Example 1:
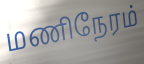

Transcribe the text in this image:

மணிநேரம்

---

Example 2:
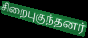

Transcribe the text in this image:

சிறைபுகுந்தனர்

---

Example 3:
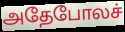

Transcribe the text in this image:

அதேபோலச்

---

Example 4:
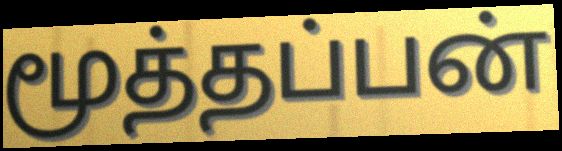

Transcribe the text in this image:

மூத்தப்பன்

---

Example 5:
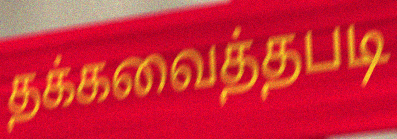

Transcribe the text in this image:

தக்கவைத்தபடி